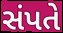
સંપતે